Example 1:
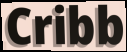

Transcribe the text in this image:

Cribb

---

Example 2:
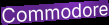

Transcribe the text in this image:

Commodore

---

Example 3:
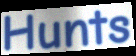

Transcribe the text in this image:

Hunts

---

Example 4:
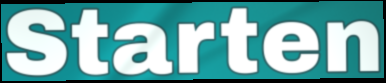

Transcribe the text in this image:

Starten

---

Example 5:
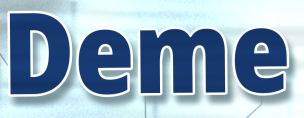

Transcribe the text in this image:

Deme